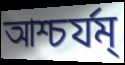
আশ্চর্যম্